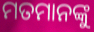
ମତମାନଙ୍କୁ